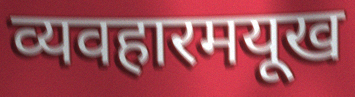
व्यवहारमयूख